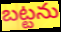
బట్టను